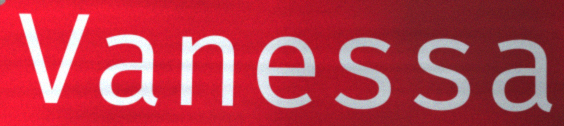
Vanessa